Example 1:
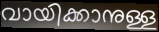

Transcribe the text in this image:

വായിക്കാനുള്ള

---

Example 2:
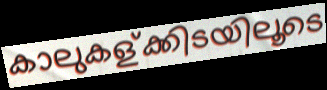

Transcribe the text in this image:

കാലുകള്ക്കിടയിലൂടെ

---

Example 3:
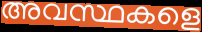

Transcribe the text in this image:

അവസ്ഥകളെ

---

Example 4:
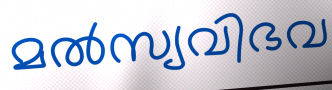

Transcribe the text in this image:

മൽസ്യവിഭവ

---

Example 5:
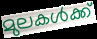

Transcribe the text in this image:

മുലകൾക്ക്